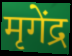
मृगेंद्र